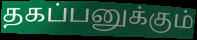
தகப்பனுக்கும்